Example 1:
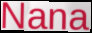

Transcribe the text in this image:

Nana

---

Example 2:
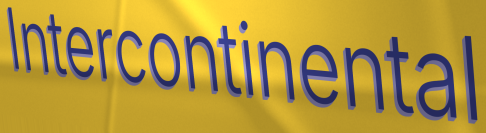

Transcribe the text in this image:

Intercontinental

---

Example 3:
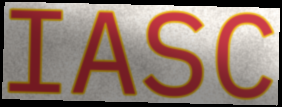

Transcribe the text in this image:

IASC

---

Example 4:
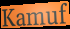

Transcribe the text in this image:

Kamuf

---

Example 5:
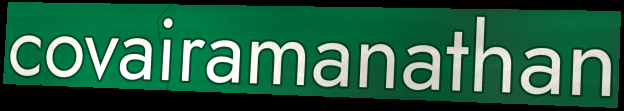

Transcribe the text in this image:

covairamanathan